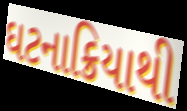
ઘટનાક્રિયાથી